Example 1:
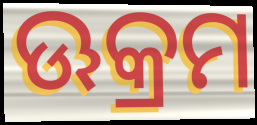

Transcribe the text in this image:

ଊକ୍ରମ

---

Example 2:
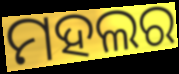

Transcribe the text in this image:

ମହଲର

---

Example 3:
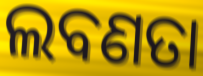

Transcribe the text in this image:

ଲବଣତା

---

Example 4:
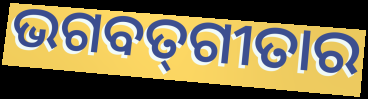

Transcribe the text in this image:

ଭଗବତ୍‍ଗୀତାର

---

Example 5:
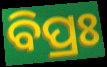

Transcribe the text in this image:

ବିପ୍ରଃ